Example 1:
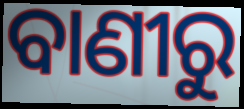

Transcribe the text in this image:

ବାଣୀରୁ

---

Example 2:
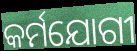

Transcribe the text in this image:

କର୍ମଯୋଗୀ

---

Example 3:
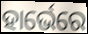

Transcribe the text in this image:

ହାର୍ଭେରେ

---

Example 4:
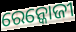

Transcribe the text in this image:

ରେନ୍କୋଜୀ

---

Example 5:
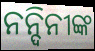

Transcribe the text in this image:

ନନ୍ଦିନୀଙ୍କ